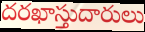
దరఖాస్తుదారులు